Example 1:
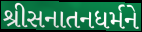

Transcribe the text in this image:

શ્રીસનાતનધર્મને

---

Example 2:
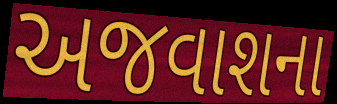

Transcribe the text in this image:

અજવાશના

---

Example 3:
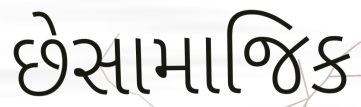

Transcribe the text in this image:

છેસામાજિક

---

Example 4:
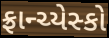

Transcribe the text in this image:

ફ્રાન્ચ્યેસ્કો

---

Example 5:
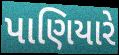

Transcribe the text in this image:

પાણિયારે